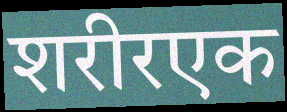
शरीरएक